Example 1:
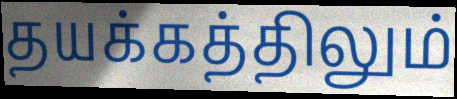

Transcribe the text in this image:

தயக்கத்திலும்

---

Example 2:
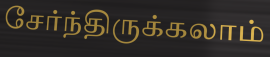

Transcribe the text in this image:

சேர்ந்திருக்கலாம்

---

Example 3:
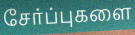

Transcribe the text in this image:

சேர்ப்புகளை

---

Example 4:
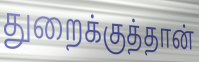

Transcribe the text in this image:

துறைக்குத்தான்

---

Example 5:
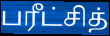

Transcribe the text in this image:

பரீட்சித்